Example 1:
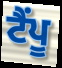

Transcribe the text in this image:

ਟੈਂਪੂ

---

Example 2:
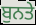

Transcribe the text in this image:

ਬੁਨਤੇ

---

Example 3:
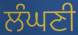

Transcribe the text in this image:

ਲੰਘਣੀ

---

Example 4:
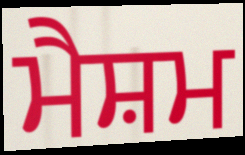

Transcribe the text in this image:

ਮੈਸ਼ਮ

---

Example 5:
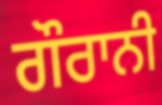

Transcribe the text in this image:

ਗੌਰਾਨੀ